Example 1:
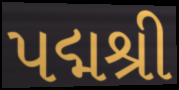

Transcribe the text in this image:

પદ્મશ્રી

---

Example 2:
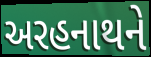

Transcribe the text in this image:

અરહનાથને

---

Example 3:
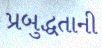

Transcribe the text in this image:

પ્રબુદ્ધતાની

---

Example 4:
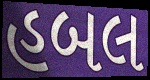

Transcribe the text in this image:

હબલ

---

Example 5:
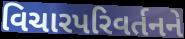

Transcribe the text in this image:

વિચારપરિવર્તનને